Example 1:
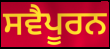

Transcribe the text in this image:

ਸਵੈਪੂਰਨ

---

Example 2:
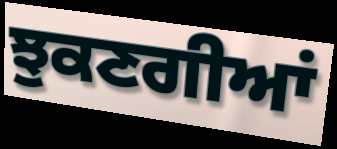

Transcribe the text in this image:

ਝੁਕਣਗੀਆਂ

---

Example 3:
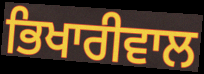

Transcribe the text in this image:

ਭਿਖਾਰੀਵਾਲ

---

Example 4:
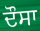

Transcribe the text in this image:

ਦੌਸਾ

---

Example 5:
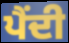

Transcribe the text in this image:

ਪੈਂਦੀ